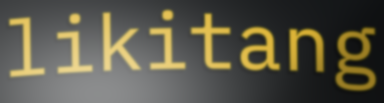
likitang